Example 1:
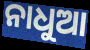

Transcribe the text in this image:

ନାଧୁଆ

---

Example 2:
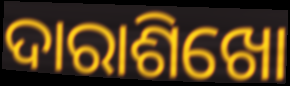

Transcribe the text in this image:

ଦାରାଶିଖୋ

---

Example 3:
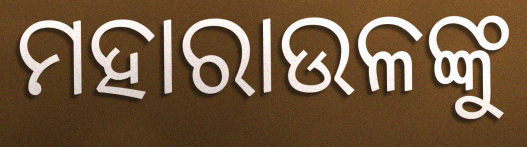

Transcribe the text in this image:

ମହାରାଉଳଙ୍କୁ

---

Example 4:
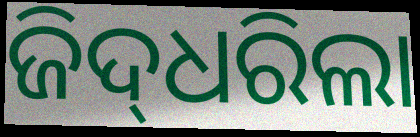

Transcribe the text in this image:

ଜିଦ୍‌ଧରିଲା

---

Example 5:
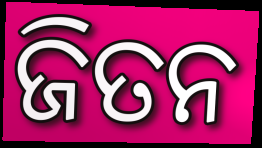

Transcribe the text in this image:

ଜିତନ